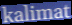
kalimat